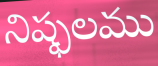
నిష్ఫలము